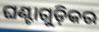
ଘଣ୍ଟାଗୁଡ଼ିକର